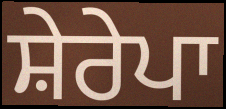
ਸ਼ੇਰੇਪਾ